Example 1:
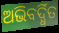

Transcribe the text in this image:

ଅଭିବର୍ଦ୍ଧିତ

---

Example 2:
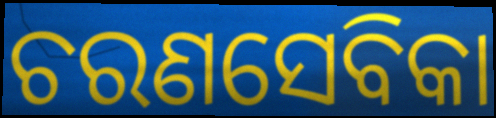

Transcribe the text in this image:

ଚରଣସେବିକା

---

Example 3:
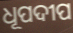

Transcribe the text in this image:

ଧୂପଦୀପ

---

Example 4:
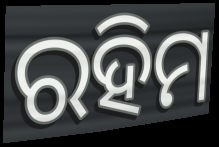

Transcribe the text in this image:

ରହିମ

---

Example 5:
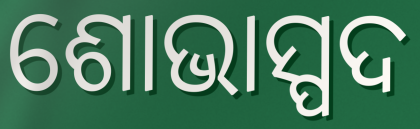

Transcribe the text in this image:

ଶୋଭାସ୍ପଦ